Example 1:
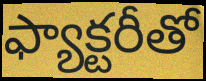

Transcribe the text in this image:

ఫ్యాక్టరీతో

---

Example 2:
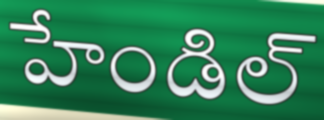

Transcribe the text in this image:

హేండిల్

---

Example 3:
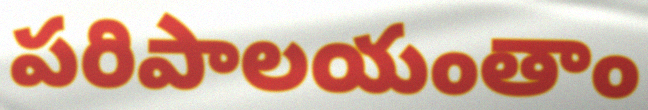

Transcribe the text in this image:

పరిపాలయంతాం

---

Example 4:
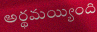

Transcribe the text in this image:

అర్థమయ్యింది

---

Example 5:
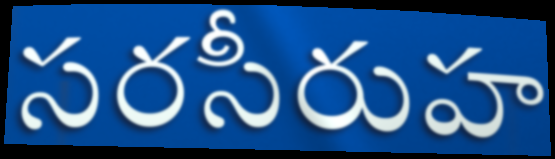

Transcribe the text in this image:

సరసీరుహ